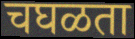
चघळता